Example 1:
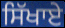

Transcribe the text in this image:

ਸਿੱਖਾਏ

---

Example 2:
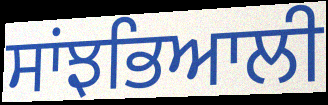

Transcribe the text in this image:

ਸਾਂਝਭਿਆਲੀ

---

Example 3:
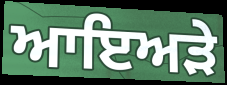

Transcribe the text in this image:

ਆਇਅੜੇ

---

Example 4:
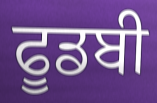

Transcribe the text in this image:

ਫੂਡਬੀ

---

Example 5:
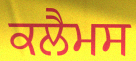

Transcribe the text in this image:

ਕਲੈਮਸ